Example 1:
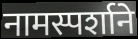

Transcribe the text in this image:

नामस्पर्शाने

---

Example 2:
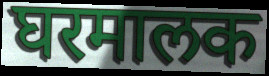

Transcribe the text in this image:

घरमालक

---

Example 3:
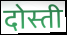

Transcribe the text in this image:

दोस्ती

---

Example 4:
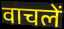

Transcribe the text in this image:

वाचलें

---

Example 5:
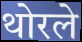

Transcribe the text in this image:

थोरले